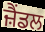
ਜ਼ੈਂਡਲ